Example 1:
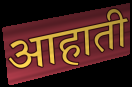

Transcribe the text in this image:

आहाती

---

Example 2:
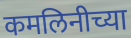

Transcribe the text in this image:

कमलिनीच्या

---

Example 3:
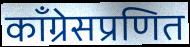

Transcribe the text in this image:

काँग्रेसप्रणित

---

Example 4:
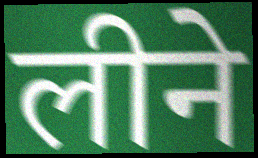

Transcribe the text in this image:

लीने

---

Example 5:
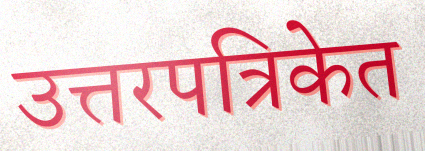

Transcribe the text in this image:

उत्तरपत्रिकेत